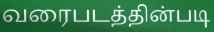
வரைபடத்தின்படி